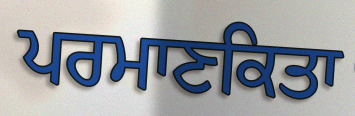
ਪਰਮਾਣਕਿਤਾ